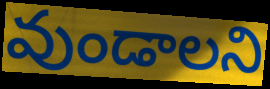
వుండాలని